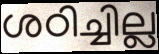
ശഠിച്ചില്ല